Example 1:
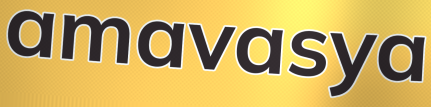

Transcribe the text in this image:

amavasya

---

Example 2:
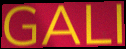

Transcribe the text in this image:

GALI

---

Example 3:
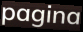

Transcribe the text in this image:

pagina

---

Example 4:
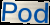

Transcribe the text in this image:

Pod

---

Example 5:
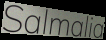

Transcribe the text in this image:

Salmalia